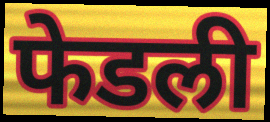
फेडली